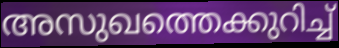
അസുഖത്തെക്കുറിച്ച്